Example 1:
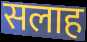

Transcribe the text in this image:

सलाह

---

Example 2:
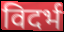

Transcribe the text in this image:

विदर्भ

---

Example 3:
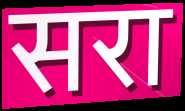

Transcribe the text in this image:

सरा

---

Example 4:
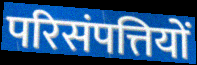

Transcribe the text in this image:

परिसंपत्तियों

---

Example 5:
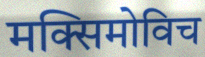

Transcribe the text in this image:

मक्सिमोविच